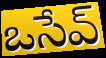
ఒసేవ్